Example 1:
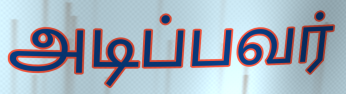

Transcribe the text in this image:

அடிப்பவர்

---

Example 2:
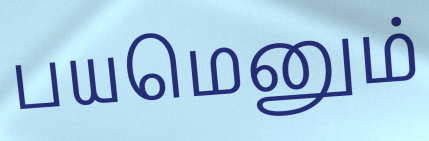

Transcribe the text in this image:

பயமெனும்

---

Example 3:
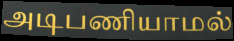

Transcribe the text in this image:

அடிபணியாமல்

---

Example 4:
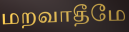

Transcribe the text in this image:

மறவாதீமே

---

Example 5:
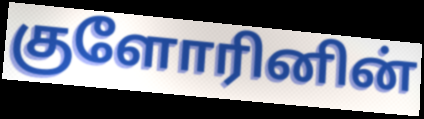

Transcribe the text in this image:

குளோரினின்